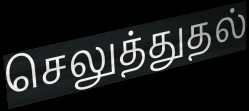
செலுத்துதல்